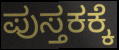
ಪುಸ್ತಕಕ್ಕೆ